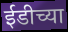
ईडीच्या